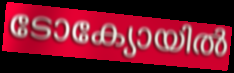
ടോക്യോയിൽ